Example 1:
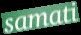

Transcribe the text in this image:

samati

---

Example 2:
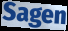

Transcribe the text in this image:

Sagen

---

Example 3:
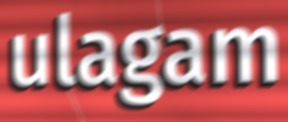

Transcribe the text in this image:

ulagam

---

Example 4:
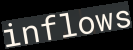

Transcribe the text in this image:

inflows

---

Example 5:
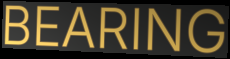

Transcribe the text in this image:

BEARING